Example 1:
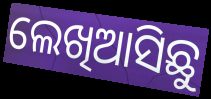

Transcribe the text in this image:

ଲେଖିଆସିଛୁ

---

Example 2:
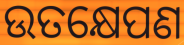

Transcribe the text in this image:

ଉତକ୍ଷେପଣ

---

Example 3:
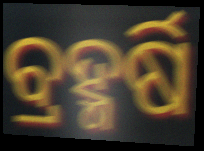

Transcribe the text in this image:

ବ୍ରହ୍ମର୍ଷି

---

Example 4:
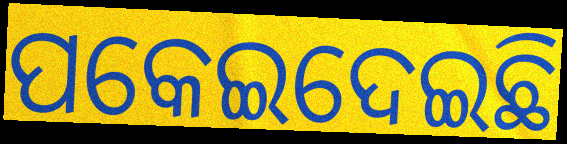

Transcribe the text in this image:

ପକେଇଦେଇଛି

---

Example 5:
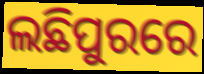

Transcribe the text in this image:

ଲଛିପୁରରେ